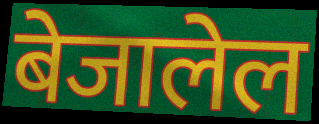
बेजालेल